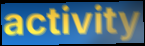
activity